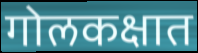
गोलकक्षात